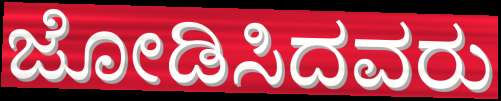
ಜೋಡಿಸಿದವರು